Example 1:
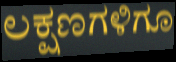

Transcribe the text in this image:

ಲಕ್ಷಣಗಳಿಗೂ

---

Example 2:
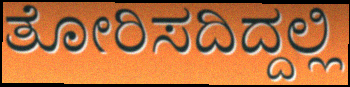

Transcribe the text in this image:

ತೋರಿಸದಿದ್ದಲ್ಲಿ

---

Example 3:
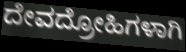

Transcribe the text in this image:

ದೇವದ್ರೋಹಿಗಳಾಗಿ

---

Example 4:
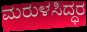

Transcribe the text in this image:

ಮರುಳಸಿದ್ಧರ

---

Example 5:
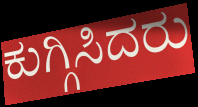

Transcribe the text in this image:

ಕುಗ್ಗಿಸಿದರು